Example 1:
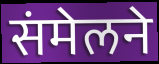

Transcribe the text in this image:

संमेलने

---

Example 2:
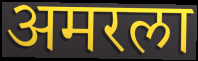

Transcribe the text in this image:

अमरला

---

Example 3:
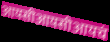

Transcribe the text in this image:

आयसीआयसीआयचं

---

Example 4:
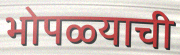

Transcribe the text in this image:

भोपळ्याची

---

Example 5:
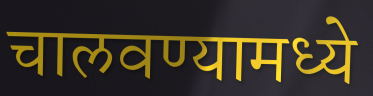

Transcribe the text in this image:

चालवण्यामध्ये